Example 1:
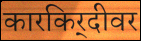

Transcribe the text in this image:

कारकिर्दीवर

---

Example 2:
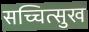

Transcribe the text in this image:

सच्चित्सुख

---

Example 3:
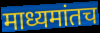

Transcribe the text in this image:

माध्यमांतच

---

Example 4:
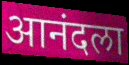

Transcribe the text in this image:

आनंदला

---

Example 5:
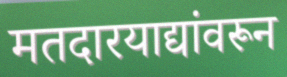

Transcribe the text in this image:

मतदारयाद्यांवरून